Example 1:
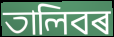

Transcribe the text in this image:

তালিবৰ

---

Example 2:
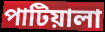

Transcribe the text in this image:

পাটিয়ালা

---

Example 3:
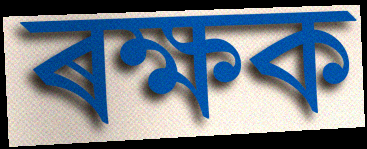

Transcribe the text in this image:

ৰক্ষক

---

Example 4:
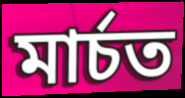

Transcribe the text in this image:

মাৰ্চত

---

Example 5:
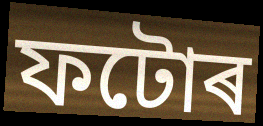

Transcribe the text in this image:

ফটোৰ